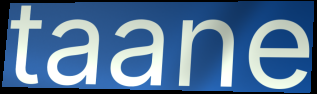
taane